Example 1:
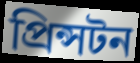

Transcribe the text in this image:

প্ৰিন্সটন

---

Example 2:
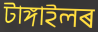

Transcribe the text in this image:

টাঙ্গাইলৰ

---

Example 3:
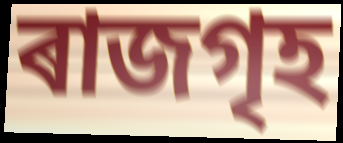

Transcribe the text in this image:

ৰাজগৃহ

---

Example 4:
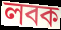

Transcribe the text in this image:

লবক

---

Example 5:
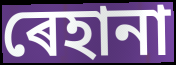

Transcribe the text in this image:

ৰেহানা